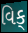
વિક્